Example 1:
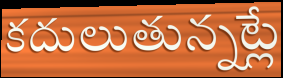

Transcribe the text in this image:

కదులుతున్నట్లే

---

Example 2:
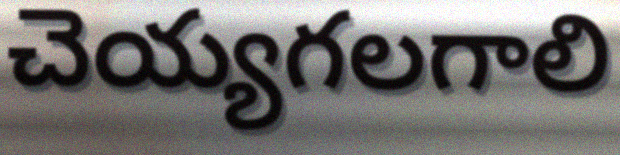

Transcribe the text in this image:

చెయ్యగలగాలి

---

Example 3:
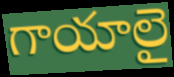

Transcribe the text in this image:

గాయాలై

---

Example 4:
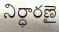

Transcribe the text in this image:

నిర్ధారణై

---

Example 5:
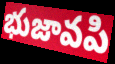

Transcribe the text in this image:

భుజావపి